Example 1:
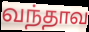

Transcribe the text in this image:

வந்தாவ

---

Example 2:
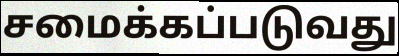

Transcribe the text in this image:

சமைக்கப்படுவது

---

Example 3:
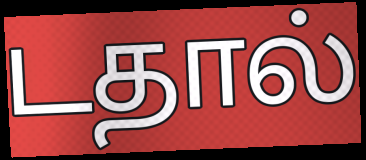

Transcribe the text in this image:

டதால்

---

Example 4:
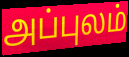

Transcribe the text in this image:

அப்புலம்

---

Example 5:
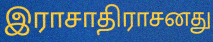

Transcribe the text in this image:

இராசாதிராசனது